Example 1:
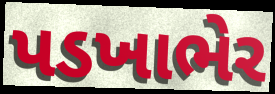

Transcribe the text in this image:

પડખાભેર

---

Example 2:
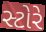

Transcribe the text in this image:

સ્ટોરે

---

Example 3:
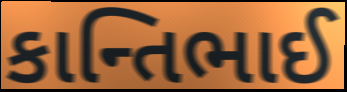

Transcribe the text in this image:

કાન્તિભાઈ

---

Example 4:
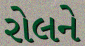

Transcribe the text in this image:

રોલને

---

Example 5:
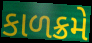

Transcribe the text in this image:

કાળક્રમે